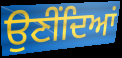
ਉਣੀਂਦਿਆਂ